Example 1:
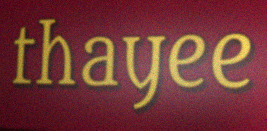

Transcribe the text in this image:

thayee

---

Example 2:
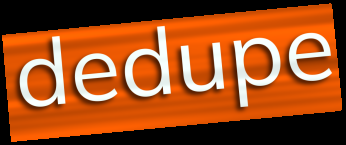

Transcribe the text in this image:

dedupe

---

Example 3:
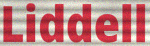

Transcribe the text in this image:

Liddell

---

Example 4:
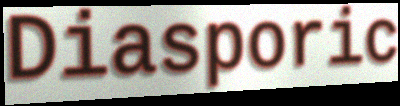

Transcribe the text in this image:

Diasporic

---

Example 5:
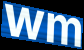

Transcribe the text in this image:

wm